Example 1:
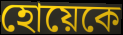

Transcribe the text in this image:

হোয়েকে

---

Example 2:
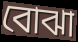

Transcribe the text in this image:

বোঝা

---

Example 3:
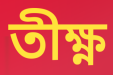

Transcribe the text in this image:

তীক্ষ্ণ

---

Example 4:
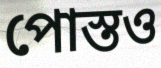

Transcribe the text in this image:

পোস্তও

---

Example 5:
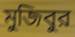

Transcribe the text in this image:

মুজিবুর